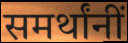
समर्थांनीं